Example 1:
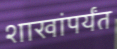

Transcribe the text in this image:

शाखांपर्यंत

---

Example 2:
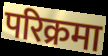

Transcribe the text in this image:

परिक्रमा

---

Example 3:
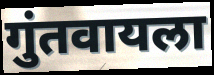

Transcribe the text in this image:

गुंतवायला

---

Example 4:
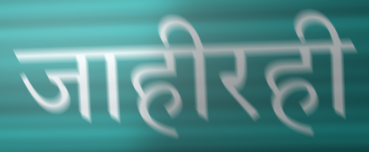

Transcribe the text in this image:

जाहीरही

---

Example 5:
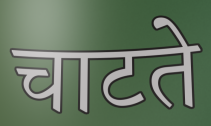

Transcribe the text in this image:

चाटते